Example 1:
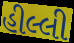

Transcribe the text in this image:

હીલ્લી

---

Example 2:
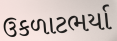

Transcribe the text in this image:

ઉકળાટભર્યા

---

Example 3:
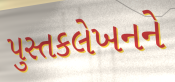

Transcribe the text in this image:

પુસ્તકલેખનને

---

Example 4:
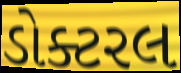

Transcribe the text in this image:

ડોક્ટરલ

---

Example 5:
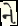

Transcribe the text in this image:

ને